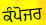
ਕੰਪੋਜਰ